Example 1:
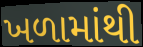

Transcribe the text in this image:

ખળામાંથી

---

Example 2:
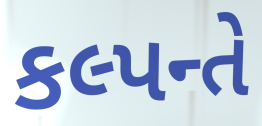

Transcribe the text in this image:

કલ્પન્તે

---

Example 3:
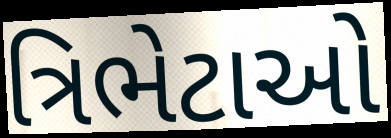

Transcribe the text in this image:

ત્રિભેટાઓ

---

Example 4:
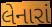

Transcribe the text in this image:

લેનારાં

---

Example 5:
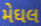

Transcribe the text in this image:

મેઘલ